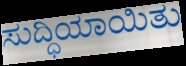
ಸುದ್ಧಿಯಾಯಿತು